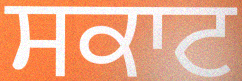
ਸਕਾਟ